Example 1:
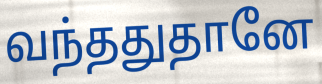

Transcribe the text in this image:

வந்ததுதானே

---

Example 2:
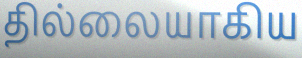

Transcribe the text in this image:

தில்லையாகிய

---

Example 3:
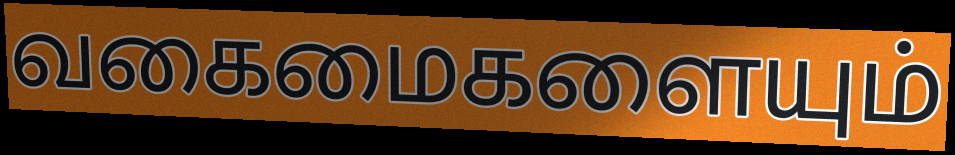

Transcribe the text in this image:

வகைமைகளையும்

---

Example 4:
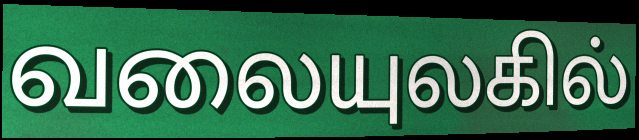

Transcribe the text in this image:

வலையுலகில்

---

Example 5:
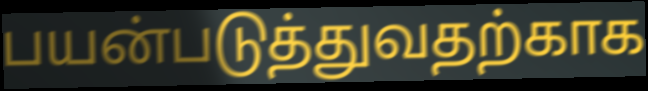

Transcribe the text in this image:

பயன்படுத்துவதற்காக